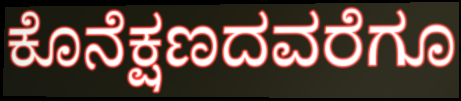
ಕೊನೆಕ್ಷಣದವರೆಗೂ